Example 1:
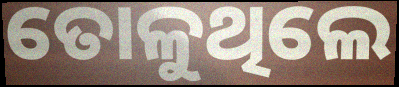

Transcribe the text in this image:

ତୋଳୁଥିଲେ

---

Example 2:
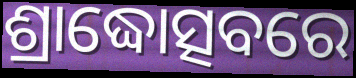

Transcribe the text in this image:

ଶ୍ରାଦ୍ଧୋତ୍ସବରେ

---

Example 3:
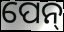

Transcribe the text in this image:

ପେନ୍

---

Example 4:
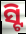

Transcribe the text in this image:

ସ୍ଟି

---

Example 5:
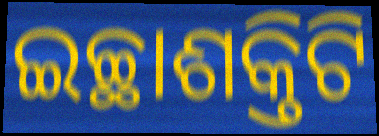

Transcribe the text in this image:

ଇଚ୍ଛାଶକ୍ତିଟି